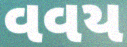
વવય